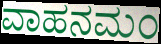
ವಾಹನಮಂ